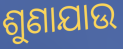
ଶୁଣାଯାଉ